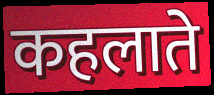
कहलाते